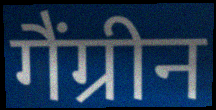
गैंग्रीन